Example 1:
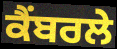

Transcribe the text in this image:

ਕੈਂਬਰਲੇ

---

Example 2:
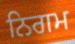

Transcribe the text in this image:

ਨਿਗਮ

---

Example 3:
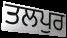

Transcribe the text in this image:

ਤਲਪੁਰ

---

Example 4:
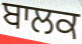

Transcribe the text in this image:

ਬਾਲਕ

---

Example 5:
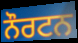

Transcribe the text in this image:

ਨੌਰਟਨ